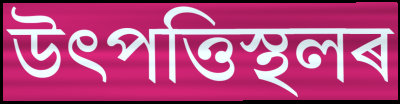
উৎপত্তিস্থলৰ